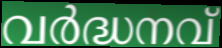
വർദ്ധനവ്